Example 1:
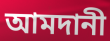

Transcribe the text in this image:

আমদানী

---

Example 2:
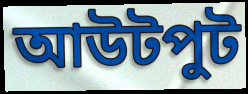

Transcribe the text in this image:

আউটপুট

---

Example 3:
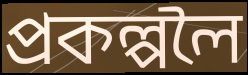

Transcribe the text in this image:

প্ৰকল্পলৈ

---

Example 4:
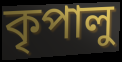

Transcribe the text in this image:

কৃপালু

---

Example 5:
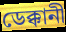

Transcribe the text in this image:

ডেক্কানী